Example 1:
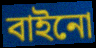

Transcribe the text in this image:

বাইনো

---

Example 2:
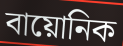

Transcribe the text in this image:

বায়োনিক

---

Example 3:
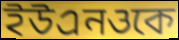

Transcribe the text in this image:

ইউএনওকে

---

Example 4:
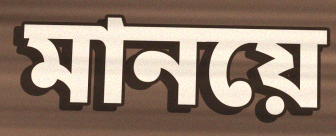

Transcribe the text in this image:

মানয়ে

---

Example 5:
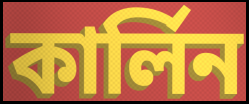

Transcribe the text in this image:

কার্লিন